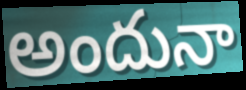
అందునా